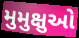
મુમુક્ષુઓ